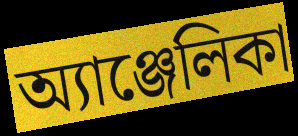
অ্যাঞ্জেলিকা